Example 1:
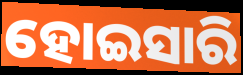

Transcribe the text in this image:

ହୋଇସାରି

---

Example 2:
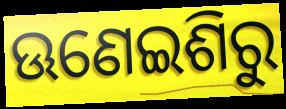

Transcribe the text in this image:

ଊଣେଇଶିରୁ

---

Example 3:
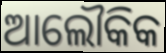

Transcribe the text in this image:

ଆଲୌକିକ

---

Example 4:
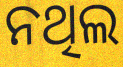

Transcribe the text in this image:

ନଥିଲ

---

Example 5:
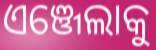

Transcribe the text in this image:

ଏଞ୍ଜେଲାକୁ